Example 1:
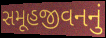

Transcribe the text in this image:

સમૂહજીવનનું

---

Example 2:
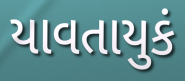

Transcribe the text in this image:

યાવતાયુકં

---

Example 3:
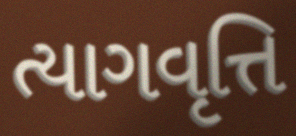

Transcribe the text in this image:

ત્યાગવૃત્તિ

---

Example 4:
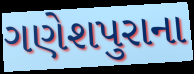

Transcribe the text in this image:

ગણેશપુરાના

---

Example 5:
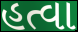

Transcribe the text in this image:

હત્વા